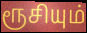
ரூசியும்